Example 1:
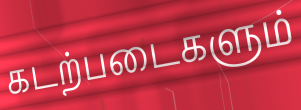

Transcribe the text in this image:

கடற்படைகளும்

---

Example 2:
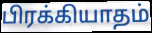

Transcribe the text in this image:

பிரக்கியாதம்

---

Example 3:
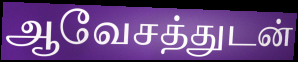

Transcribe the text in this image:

ஆவேசத்துடன்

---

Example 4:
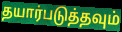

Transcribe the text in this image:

தயார்படுத்தவும்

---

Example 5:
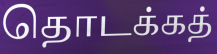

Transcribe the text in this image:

தொடக்கத்